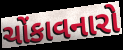
ચોંકાવનારો